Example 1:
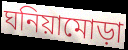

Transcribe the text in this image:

ঘনিয়ামোড়া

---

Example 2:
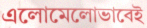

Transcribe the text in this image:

এলোমেলোভাবেই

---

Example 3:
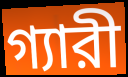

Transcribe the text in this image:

গ্যারী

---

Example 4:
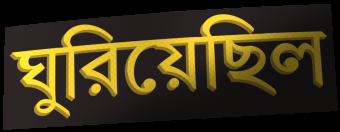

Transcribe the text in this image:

ঘুরিয়েছিল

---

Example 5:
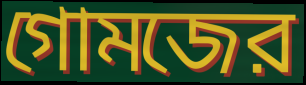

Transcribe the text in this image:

গোমজের